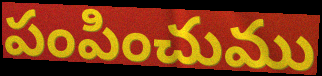
పంపించుము